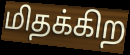
மிதக்கிற